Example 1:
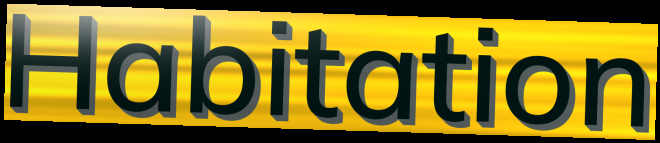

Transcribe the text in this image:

Habitation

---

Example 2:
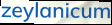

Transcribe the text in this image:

zeylanicum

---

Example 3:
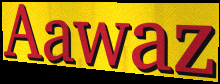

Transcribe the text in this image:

Aawaz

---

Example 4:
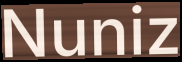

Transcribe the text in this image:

Nuniz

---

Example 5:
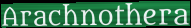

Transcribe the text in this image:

Arachnothera